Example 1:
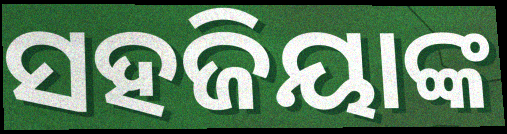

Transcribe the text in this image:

ସହଜିୟାଙ୍କ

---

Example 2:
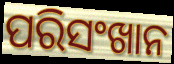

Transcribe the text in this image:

ପରିସଂଖାନ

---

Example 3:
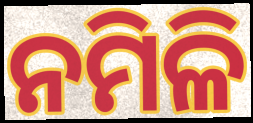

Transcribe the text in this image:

ନମିଳି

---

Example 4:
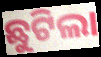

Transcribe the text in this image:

ଛୁଟିଲା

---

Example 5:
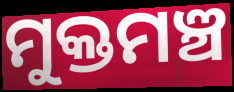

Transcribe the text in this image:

ମୁକ୍ତମଞ୍ଚ